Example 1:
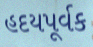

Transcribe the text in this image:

હદયપૂર્વક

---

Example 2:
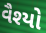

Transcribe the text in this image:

વૈશ્યો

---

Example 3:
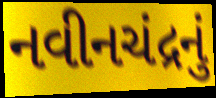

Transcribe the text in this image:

નવીનચંદ્રનું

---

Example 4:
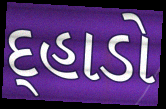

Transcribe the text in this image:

દ્હાડો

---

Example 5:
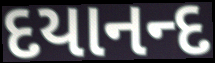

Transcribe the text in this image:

દયાનન્દ